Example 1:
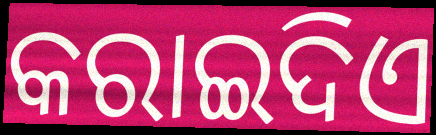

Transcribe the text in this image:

କରାଇଦିଏ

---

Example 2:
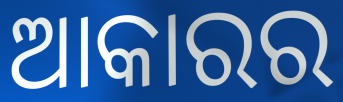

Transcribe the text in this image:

ଆକାରର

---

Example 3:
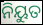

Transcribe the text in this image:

ନିୟୁତ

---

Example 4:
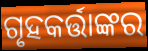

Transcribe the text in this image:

ଗୃହକର୍ତ୍ତାଙ୍କର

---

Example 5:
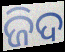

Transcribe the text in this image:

ଜିଦ